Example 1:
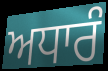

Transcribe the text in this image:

ਅਧਾਰੰ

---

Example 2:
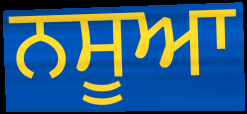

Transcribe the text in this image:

ਨਸੂਆ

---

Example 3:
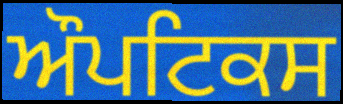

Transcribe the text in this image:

ਔਪਟਿਕਸ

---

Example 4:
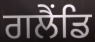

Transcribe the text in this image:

ਗਲੈਂਡਿ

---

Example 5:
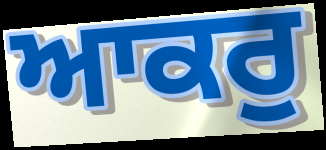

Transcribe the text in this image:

ਆਕਰੁ